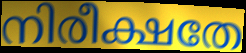
നിരീക്ഷതേ